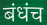
बंधंच